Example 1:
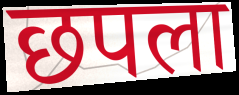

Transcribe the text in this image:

छपला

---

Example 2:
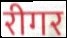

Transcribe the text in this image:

रीगर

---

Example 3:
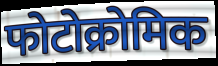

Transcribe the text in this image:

फोटोक्रोमिक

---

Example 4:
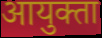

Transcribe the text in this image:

आयुक्ता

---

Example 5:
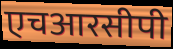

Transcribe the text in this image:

एचआरसीपी